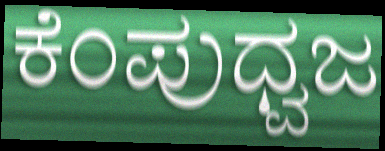
ಕೆಂಪುಧ್ವಜ